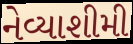
નેવ્યાશીમી